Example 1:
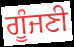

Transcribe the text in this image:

ਗੂੰਜਣੀ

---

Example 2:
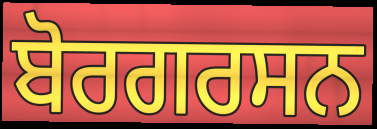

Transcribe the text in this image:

ਬੋਰਗਰਸਨ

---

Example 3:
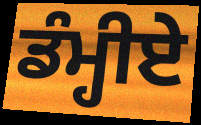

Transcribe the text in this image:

ਡੰਮ੍ਹੀਏ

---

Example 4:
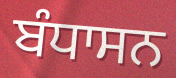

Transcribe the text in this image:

ਬੰਧਾਸਨ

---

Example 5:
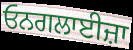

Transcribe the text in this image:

ਓਨਗਲਾਈਜ਼ਾ